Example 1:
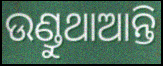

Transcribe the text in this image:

ଉଣ୍ଡୁଥାଆନ୍ତି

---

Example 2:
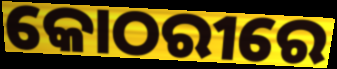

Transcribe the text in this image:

କୋଠରୀରେ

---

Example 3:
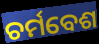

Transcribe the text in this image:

ଚର୍ମବେଶ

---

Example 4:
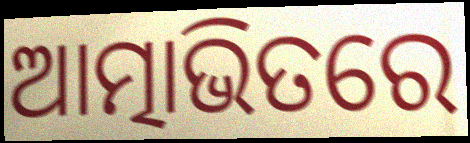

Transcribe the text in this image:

ଆତ୍ମାଭିତରେ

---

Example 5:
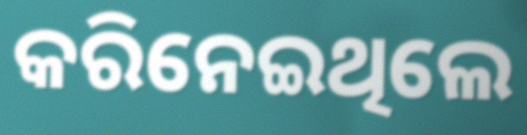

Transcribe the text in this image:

କରିନେଇଥିଲେ